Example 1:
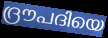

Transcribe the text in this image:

ദ്രൗപദിയെ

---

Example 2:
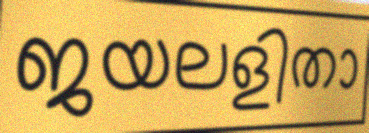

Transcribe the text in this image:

ജയലളിതാ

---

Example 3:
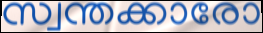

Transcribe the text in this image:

സ്വന്തക്കാരോ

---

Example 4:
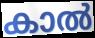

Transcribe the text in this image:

കാൽ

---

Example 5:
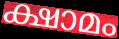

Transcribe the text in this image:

ക്ഷാമം